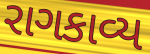
રાગકાવ્ય